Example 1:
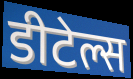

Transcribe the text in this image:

डीटेल्‍स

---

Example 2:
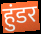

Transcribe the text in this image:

हुंडर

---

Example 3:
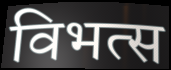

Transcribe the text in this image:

विभत्स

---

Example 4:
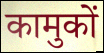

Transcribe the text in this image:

कामुकों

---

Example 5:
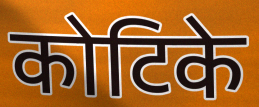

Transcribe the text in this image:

कोटिके